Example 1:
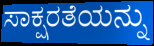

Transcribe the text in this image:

ಸಾಕ್ಷರತೆಯನ್ನು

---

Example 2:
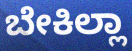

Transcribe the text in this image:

ಬೇಕಿಲ್ಲಾ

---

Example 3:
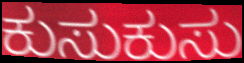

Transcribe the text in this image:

ಕುಸುಕುಸು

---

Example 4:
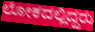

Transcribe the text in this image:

ಲೋಕದಲ್ಲಿದ್ದರು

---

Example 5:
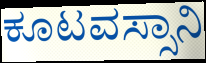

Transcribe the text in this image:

ಕೂಟವಸ್ಸಾನಿ